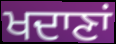
ਖਦਾਣਾਂ